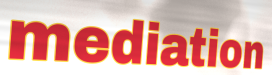
mediation